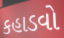
કહાડવો